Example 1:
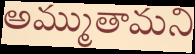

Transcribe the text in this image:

అమ్ముతామని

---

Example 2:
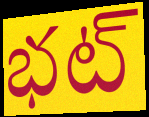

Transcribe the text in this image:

భట్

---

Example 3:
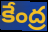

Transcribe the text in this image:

కేంద్ర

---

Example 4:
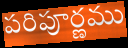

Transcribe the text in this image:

పరిపూర్ణము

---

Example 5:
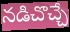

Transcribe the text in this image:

నడిచొచ్చే